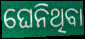
ଘେନିଥିବା